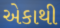
એકાથી